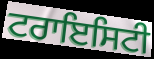
ਟਰਾਇਸਿਟੀ